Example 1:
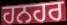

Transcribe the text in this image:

ਹਨਹਰ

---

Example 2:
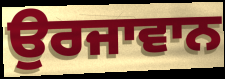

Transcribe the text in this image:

ਉਰਜਾਵਾਨ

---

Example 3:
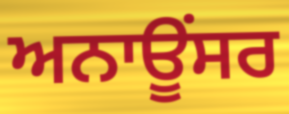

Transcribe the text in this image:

ਅਨਾਊਂਸਰ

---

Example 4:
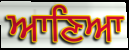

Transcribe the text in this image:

ਆਣਿਆ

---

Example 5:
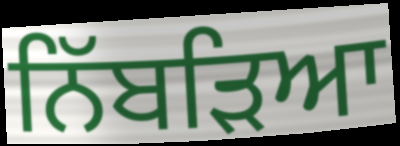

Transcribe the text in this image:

ਨਿੱਬੜਿਆ